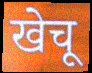
खेचू